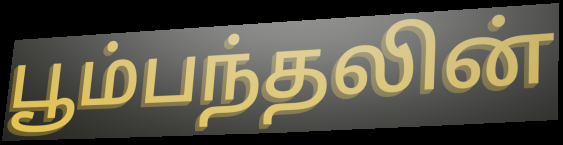
பூம்பந்தலின்